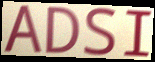
ADSI